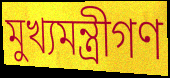
মুখ্যমন্ত্রীগণ